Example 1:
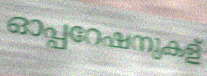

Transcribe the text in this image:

ഓപ്പറേഷനുകള്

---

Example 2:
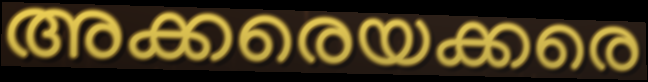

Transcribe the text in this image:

അക്കരെയക്കരെ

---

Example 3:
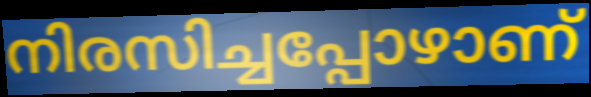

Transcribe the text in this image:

നിരസിച്ചപ്പോഴാണ്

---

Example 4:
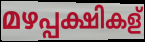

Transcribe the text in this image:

മഴപ്പക്ഷികള്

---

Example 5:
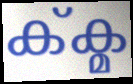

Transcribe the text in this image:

ക്ക്മ